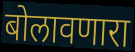
बोलावणारा